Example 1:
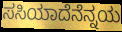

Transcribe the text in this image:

ಸಸಿಯಾದೆನೆನ್ನಯ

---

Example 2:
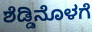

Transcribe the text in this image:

ಶೆಡ್ಡಿನೊಳಗೆ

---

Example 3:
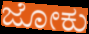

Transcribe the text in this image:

ಜೋಕು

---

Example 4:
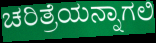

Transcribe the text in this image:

ಚರಿತ್ರೆಯನ್ನಾಗಲಿ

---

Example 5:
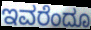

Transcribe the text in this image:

ಇವರೆಂದೂ